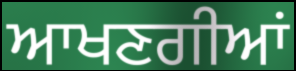
ਆਖਣਗੀਆਂ